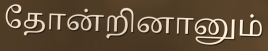
தோன்றினானும்